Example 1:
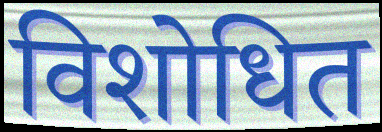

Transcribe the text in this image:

विशोधित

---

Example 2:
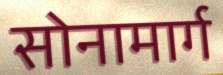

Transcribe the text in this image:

सोनामार्ग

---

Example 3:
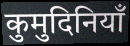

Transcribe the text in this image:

कुमुदिनियाँ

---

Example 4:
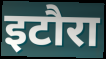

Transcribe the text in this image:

इटौरा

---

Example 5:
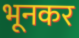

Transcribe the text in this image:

भूनकर